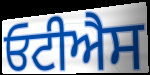
ਓਟੀਐਸ